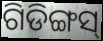
ଗିଡିଙ୍ଗସ୍